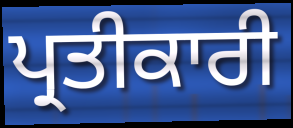
ਪ੍ਰਤੀਕਾਰੀ